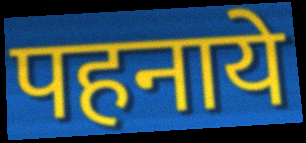
पहनाये